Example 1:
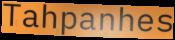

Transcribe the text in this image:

Tahpanhes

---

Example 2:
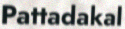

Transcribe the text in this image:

Pattadakal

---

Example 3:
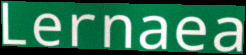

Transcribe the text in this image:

Lernaea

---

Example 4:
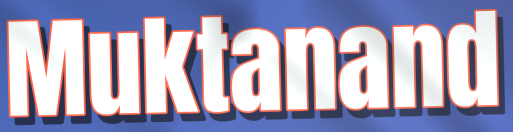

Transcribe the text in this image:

Muktanand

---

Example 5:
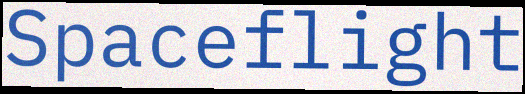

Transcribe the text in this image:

Spaceflight